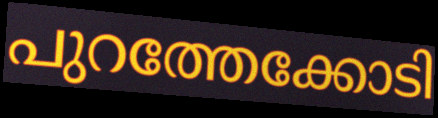
പുറത്തേക്കോടി